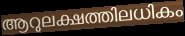
ആറുലക്ഷത്തിലധികം